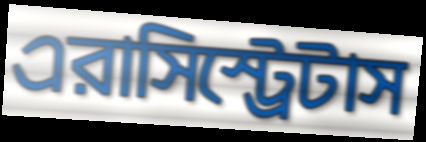
এরাসিস্ট্রেটাস